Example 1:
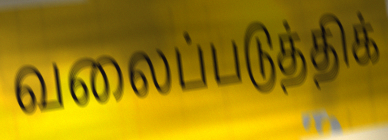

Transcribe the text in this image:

வலைப்படுத்திக்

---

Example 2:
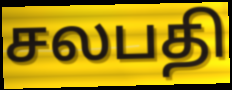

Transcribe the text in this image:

சலபதி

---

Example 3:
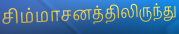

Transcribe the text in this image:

சிம்மாசனத்திலிருந்து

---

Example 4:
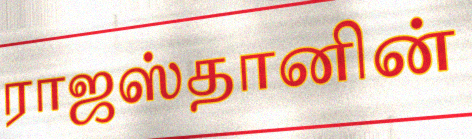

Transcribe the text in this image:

ராஜஸ்தானின்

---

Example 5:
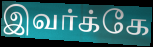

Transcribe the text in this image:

இவர்க்கே